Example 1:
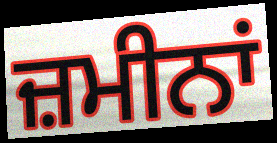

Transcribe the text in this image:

ਜ਼ਮੀਨਾਂ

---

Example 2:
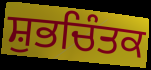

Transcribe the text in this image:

ਸ਼ੁਭਚਿੰਤਕ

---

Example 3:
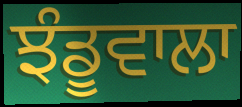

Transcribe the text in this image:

ਝੰਡੂਵਾਲਾ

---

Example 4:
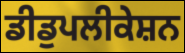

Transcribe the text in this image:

ਡੀਡੁਪਲੀਕੇਸ਼ਨ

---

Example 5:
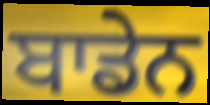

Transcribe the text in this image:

ਬਾਡੇਨ